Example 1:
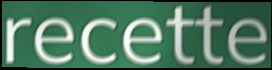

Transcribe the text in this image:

recette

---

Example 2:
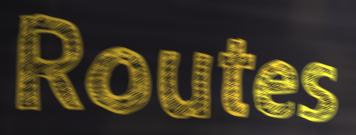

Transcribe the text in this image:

Routes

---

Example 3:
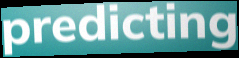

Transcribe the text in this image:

predicting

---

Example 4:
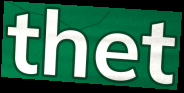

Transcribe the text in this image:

thet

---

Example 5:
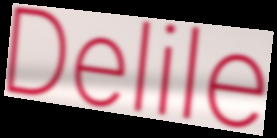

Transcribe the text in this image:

Delile